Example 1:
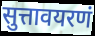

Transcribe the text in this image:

सुत्तावयरणं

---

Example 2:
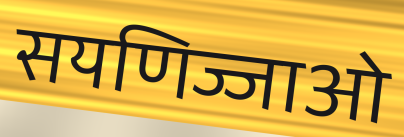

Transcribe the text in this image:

सयणिज्जाओ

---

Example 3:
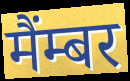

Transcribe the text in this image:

मैंम्बर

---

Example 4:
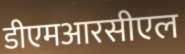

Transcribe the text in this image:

डीएमआरसीएल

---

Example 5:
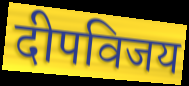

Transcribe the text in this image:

दीपविजय